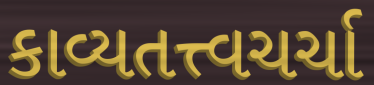
કાવ્યતત્ત્વચર્ચા